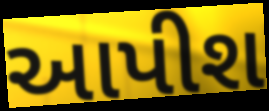
આપીશ